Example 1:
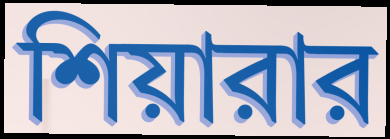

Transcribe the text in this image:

শিয়ারার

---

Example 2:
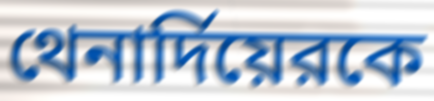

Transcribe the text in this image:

থেনার্দিয়েরকে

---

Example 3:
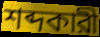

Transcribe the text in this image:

শব্দকারী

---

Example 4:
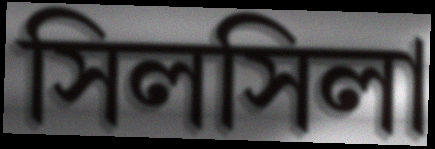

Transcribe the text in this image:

সিলসিলা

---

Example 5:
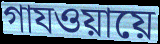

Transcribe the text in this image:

গাযওয়ায়ে